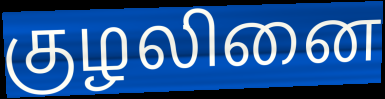
குழலினை